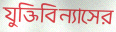
যুক্তিবিন্যাসের